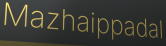
Mazhaippadal